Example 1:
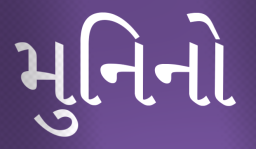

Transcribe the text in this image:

મુનિનો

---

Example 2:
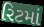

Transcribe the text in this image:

રિટમાં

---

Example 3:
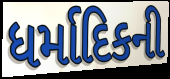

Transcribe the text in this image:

ધર્માદિકની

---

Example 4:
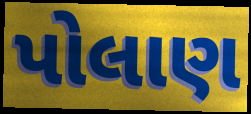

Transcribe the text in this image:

પોલાણ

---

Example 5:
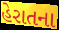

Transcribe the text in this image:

હેરાતના